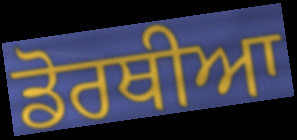
ਡੋਰਥੀਆ